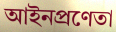
আইনপ্রণেতা